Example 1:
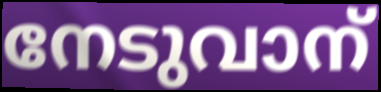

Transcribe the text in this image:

നേടുവാന്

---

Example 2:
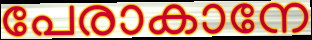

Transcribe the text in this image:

പേരാകാനേ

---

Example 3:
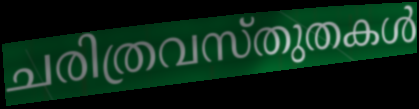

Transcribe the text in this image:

ചരിത്രവസ്തുതകൾ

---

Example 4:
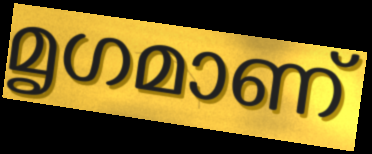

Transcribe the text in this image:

മൃഗമാണ്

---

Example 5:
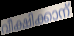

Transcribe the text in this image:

വീക്ഷിക്കാന്